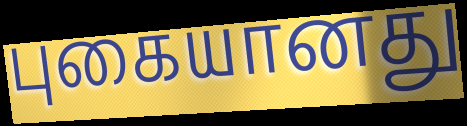
புகையானது